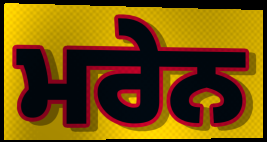
ਮਰੇਨ